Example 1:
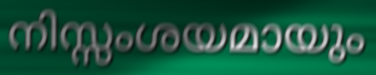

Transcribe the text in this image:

നിസ്സംശയമായും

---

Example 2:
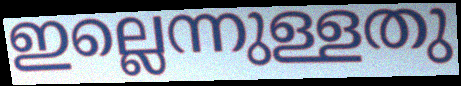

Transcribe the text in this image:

ഇല്ലെന്നുള്ളതു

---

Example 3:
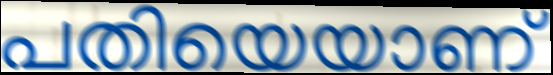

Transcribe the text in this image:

പതിയെയാണ്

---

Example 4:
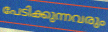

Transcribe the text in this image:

പേടിക്കുന്നവരും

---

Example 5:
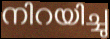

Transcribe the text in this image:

നിറയിച്ചു